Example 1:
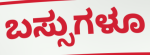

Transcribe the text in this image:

ಬಸ್ಸುಗಳೂ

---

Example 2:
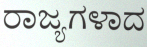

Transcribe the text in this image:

ರಾಜ್ಯಗಳಾದ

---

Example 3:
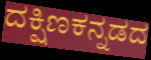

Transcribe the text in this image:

ದಕ್ಷಿಣಕನ್ನಡದ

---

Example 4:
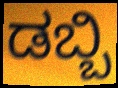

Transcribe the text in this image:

ಡಬ್ಬಿ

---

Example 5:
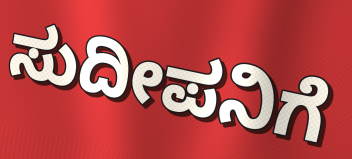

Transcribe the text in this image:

ಸುದೀಪನಿಗೆ